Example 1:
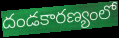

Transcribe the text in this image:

దండకారణ్యంలో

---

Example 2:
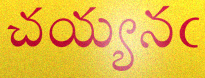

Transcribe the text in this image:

చయ్యనఁ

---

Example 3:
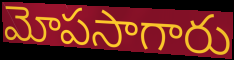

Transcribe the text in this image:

మోపసాగారు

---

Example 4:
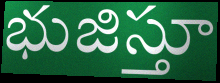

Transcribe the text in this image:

భుజిస్తూ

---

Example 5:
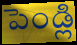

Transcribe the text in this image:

పెండ్లి